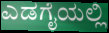
ಎಡಗೈಯಲ್ಲಿ